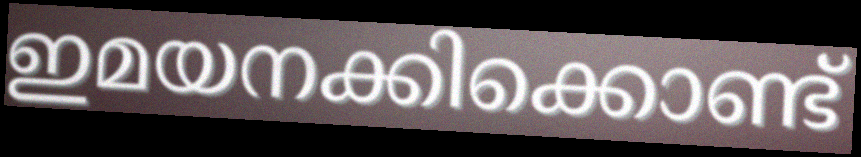
ഇമയനക്കിക്കൊണ്ട്